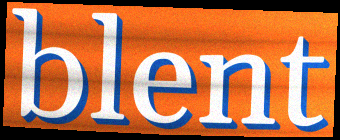
blent